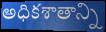
అధికశాతాన్ని